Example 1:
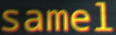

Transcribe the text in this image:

samel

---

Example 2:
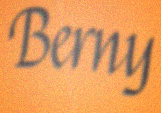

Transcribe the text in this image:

Berny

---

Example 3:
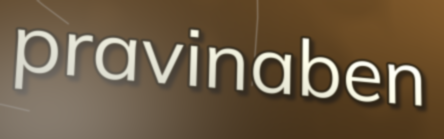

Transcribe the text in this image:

pravinaben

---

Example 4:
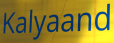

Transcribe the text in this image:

Kalyaand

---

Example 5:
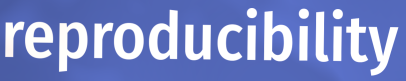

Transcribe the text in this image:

reproducibility